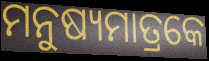
ମନୁଷ୍ୟମାତ୍ରକେ